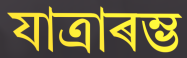
যাত্ৰাৰম্ভ